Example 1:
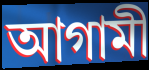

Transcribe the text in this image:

আগামী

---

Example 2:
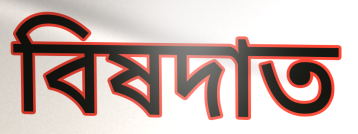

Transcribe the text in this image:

বিষদাত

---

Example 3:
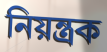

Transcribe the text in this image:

নিয়ন্ত্রক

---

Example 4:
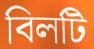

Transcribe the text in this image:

বিলটি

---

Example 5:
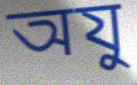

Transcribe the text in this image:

অযু